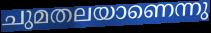
ചുമതലയാണെന്നു